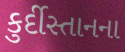
કુર્દીસ્તાનના